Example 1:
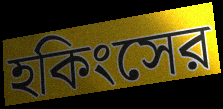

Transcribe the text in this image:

হকিংসের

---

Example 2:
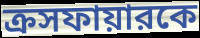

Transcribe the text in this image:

ক্রসফায়ারকে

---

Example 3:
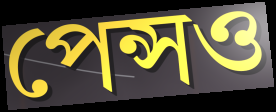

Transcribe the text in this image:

পেন্সও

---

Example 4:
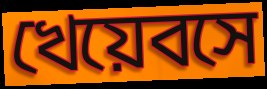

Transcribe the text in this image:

খেয়েবসে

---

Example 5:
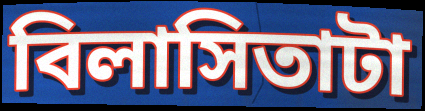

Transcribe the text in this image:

বিলাসিতাটা